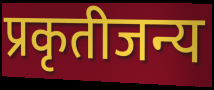
प्रकृतीजन्य